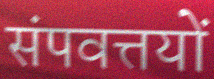
संपवत्तयों